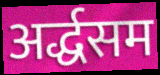
अर्द्धसम